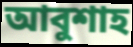
আবুশাহ